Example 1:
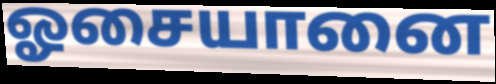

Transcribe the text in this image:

ஓசையானை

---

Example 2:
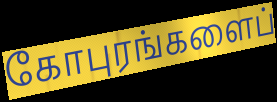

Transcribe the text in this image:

கோபுரங்களைப்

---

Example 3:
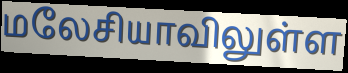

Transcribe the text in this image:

மலேசியாவிலுள்ள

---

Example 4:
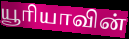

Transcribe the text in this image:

யூரியாவின்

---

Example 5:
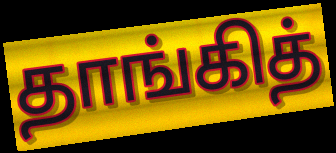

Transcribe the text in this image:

தாங்கித்